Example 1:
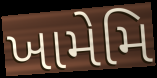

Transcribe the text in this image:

ખામેમિ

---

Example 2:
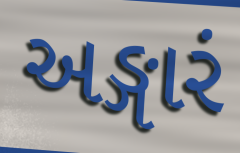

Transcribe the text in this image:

અઙ્ગારં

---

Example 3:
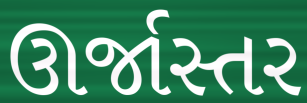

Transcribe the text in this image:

ઊર્જાસ્તર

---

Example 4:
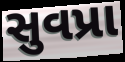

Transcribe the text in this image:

સુવપ્રા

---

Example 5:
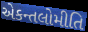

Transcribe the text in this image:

એકન્તલોમીતિ